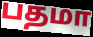
பதமா